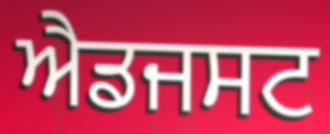
ਐਡਜਸਟ